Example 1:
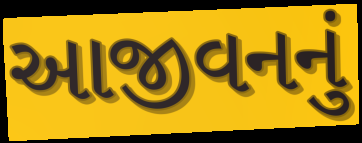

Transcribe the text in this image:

આજીવનનું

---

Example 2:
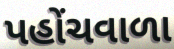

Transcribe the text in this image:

પહોંચવાળા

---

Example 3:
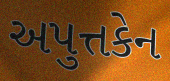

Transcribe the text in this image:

અપુત્તકેન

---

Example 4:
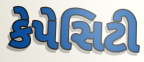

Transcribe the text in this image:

કેપેસિટી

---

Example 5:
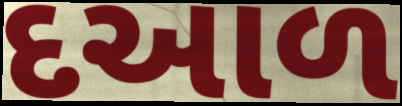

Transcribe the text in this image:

દઆળ